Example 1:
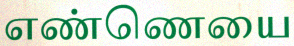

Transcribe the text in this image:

எண்ணெயை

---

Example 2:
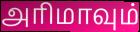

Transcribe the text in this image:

அரிமாவும்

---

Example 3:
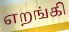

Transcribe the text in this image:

எறங்கி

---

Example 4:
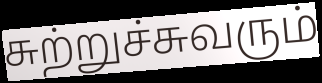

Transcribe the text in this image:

சுற்றுச்சுவரும்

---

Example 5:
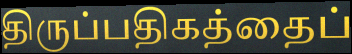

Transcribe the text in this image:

திருப்பதிகத்தைப்